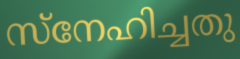
സ്നേഹിച്ചതു